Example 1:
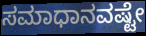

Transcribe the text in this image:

ಸಮಾಧಾನವಷ್ಟೇ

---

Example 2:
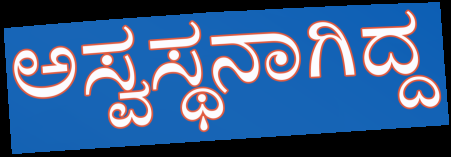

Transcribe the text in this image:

ಅಸ್ವಸ್ಥನಾಗಿದ್ದ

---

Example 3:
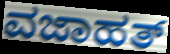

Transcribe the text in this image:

ವಜಾಹತ್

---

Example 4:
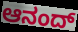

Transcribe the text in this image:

ಆನಂದ್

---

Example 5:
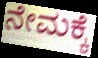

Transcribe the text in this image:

ನೇಮಕ್ಕೆ